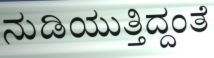
ನುಡಿಯುತ್ತಿದ್ದಂತೆ